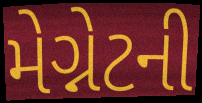
મેગ્નેટની